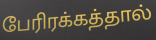
பேரிரக்கத்தால்